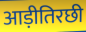
आड़ीतिरछी